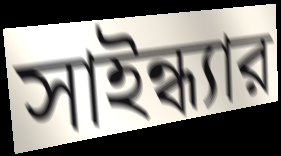
সাইন্ধ্যার